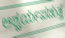
ಆಶ್ಚರ್ಯಪಡುತ್ತ